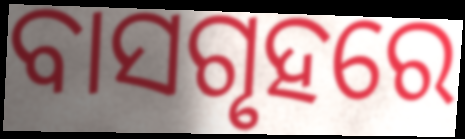
ବାସଗୃହରେ